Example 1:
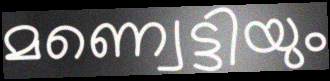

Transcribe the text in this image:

മണ്വെട്ടിയും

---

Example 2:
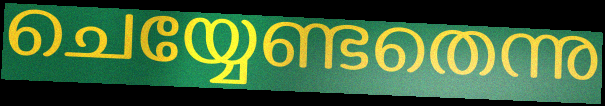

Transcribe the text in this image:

ചെയ്യേണ്ടതെന്നു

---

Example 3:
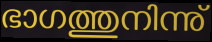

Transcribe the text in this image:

ഭാഗത്തുനിന്നു്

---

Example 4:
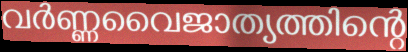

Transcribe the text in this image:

വർണ്ണവൈജാത്യത്തിന്റെ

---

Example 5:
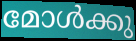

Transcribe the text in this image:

മോൾക്കു